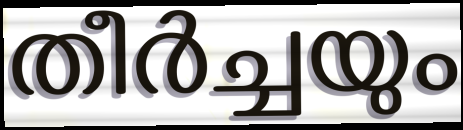
തീർച്ചയും